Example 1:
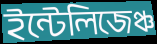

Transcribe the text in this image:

ইন্টেলিজেঞ্চ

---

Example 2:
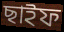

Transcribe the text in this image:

ছাইফ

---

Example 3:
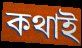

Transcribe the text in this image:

কথাই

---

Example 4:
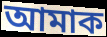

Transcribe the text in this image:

আমাক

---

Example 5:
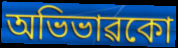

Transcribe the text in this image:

অভিভাৱকো